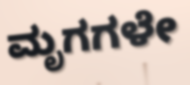
ಮೃಗಗಳೇ